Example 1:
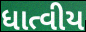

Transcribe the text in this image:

ધાત્વીય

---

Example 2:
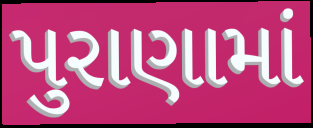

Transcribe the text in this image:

પુરાણામાં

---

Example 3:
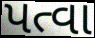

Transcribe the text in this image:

પત્વા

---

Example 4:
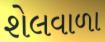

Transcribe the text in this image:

શેલવાળા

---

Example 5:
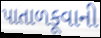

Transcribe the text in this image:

પાતાળકૂવાની